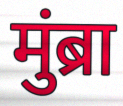
मुंब्रा